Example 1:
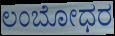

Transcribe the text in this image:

ಲಂಬೋಧರ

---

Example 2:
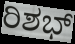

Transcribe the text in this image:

ರಿಶಭ್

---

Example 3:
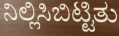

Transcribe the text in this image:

ನಿಲ್ಲಿಸಿಬಿಟ್ಟಿತು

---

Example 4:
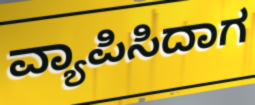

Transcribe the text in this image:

ವ್ಯಾಪಿಸಿದಾಗ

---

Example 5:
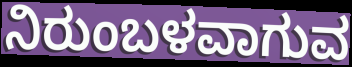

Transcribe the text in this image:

ನಿರುಂಬಳವಾಗುವ